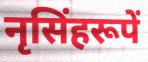
नृसिंहरूपें